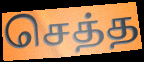
செத்த